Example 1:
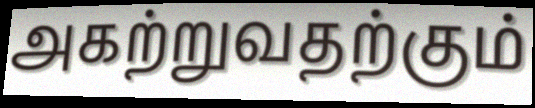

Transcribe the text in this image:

அகற்றுவதற்கும்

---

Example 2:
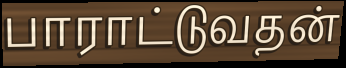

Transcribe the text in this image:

பாராட்டுவதன்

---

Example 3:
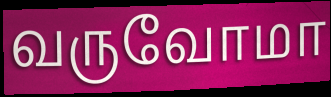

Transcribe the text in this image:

வருவோமா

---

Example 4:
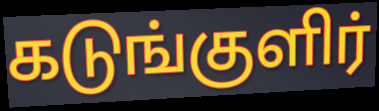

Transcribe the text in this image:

கடுங்குளிர்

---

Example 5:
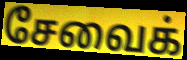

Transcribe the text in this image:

சேவைக்